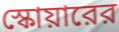
স্কোয়ারের